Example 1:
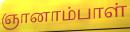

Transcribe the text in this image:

ஞானாம்பாள்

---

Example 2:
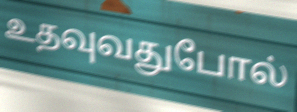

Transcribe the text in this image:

உதவுவதுபோல்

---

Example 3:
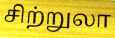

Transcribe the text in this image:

சிற்றுலா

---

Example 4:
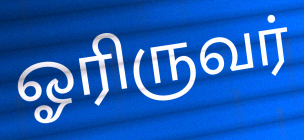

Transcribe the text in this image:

ஓரிருவர்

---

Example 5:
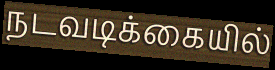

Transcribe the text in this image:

நடவடிக்கையில்